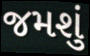
જમશું